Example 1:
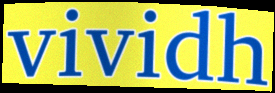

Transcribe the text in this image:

vividh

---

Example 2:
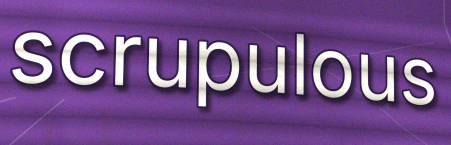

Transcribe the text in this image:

scrupulous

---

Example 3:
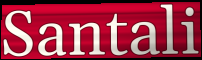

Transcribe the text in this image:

Santali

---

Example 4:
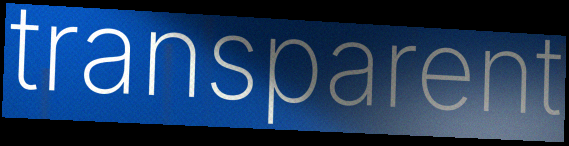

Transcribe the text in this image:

transparent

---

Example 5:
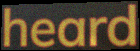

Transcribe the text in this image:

heard